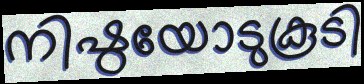
നിഷ്ഠയോടുകൂടി